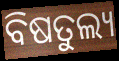
ବିଷତୁଲ୍ୟ